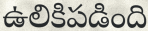
ఉలికిపడింది